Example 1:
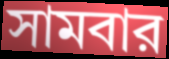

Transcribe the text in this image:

সামবার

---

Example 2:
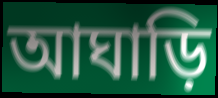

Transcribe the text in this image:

আঘাড়ি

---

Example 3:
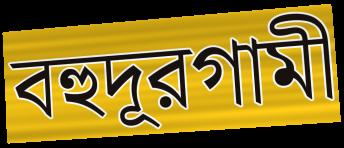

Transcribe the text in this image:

বহুদূরগামী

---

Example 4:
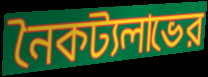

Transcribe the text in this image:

নৈকট্যলাভের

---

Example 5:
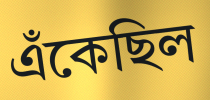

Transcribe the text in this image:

এঁকেছিল